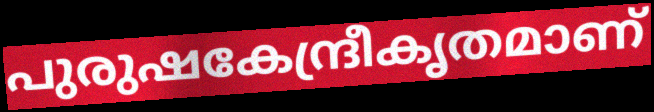
പുരുഷകേന്ദ്രീകൃതമാണ്